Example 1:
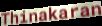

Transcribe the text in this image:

Thinakaran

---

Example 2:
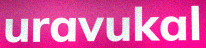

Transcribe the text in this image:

uravukal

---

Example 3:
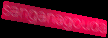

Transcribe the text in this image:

sanganagouda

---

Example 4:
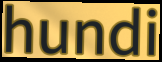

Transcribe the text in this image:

hundi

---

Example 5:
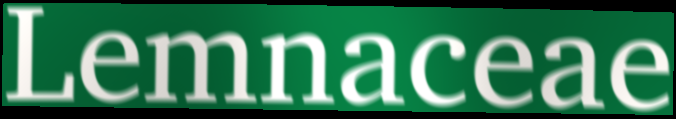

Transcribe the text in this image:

Lemnaceae